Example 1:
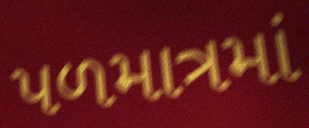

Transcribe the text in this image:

પળમાત્રમાં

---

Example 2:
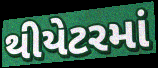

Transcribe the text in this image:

થીયેટરમાં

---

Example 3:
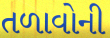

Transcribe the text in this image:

તળાવોની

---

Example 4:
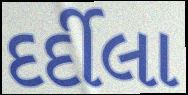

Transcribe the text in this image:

દર્દીલા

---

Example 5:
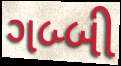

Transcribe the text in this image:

ગબ્બી